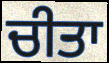
ਚੀਤਾ